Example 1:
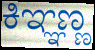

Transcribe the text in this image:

ಕಿಞ್ಞಣ್ಣ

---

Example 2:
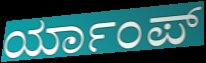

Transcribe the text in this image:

ರ್ಯಾಂಪ್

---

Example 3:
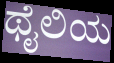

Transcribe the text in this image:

ಥೈಲಿಯ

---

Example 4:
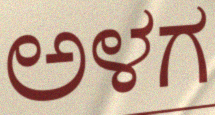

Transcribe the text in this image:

ಅಳಗ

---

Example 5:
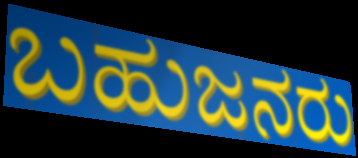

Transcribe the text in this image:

ಬಹುಜನರು